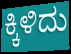
ಕ್ಕಿಳಿದು